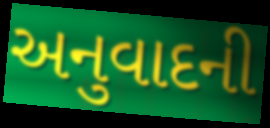
અનુવાદની